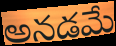
అనడమే